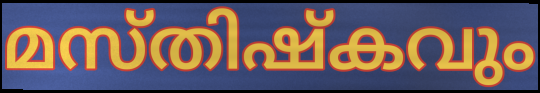
മസ്തിഷ്കവും